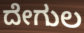
ದೇಗುಲ